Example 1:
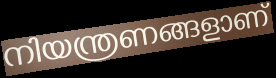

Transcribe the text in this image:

നിയന്ത്രണങ്ങളാണ്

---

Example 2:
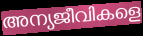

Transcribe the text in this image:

അന്യജീവികളെ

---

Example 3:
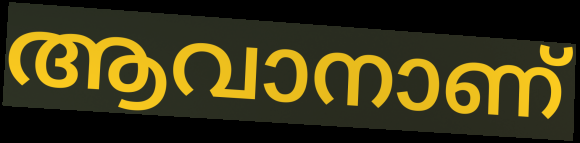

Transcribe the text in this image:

ആവാനാണ്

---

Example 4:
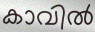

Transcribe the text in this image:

കാവിൽ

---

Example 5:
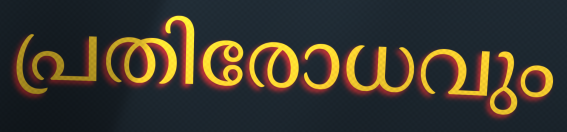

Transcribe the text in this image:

പ്രതിരോധവും